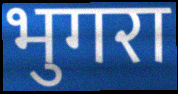
भुगरा